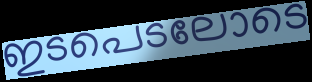
ഇടപെടലോടെ